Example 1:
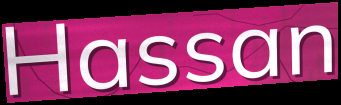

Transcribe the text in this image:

Hassan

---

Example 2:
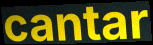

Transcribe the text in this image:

cantar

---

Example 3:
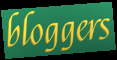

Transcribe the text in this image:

bloggers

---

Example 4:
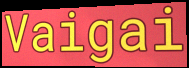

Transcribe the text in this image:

Vaigai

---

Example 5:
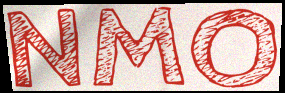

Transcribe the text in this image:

NMO